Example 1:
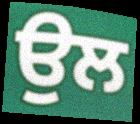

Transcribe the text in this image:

ਉਲ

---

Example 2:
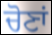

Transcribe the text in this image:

ਚੋਣਾਂ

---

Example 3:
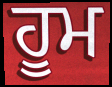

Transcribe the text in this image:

ਹੂਮ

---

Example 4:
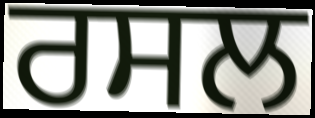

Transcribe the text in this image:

ਰਸਲ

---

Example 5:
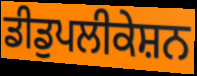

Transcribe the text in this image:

ਡੀਡੁਪਲੀਕੇਸ਼ਨ